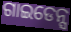
ଗାଇଡେନ୍ସ